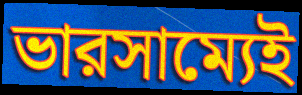
ভারসাম্যেই